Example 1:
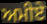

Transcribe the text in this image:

ਅਮੀਏ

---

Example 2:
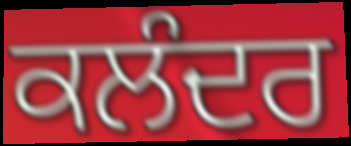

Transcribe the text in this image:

ਕਲੰਦਰ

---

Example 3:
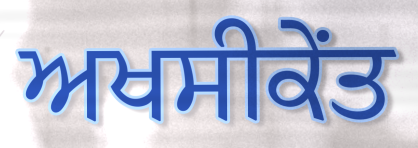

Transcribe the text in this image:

ਅਖਸੀਕੇਂਤ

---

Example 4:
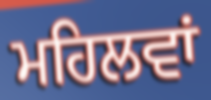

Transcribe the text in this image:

ਮਹਿਲਵਾਂ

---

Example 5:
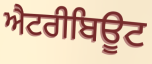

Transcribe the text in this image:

ਐਟਰੀਬਿਊਟ